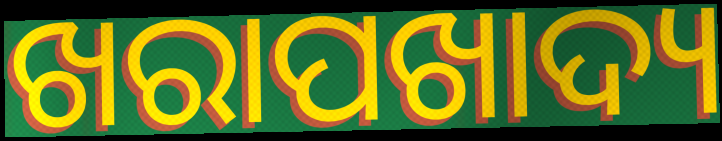
ଖରାପଖାଦ୍ୟ